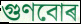
গুণবোৰ